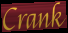
Crank